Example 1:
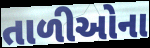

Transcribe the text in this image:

તાળીઓના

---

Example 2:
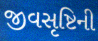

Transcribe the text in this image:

જીવસૃષ્ટિની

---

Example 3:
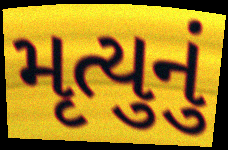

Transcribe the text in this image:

મૃત્યુનું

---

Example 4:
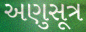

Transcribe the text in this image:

અણુસૂત્ર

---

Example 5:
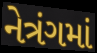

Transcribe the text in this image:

નેત્રંગમાં